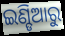
ଇଣ୍ଡିଆରୁ